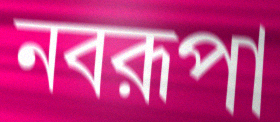
নবরূপা